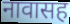
नावासह